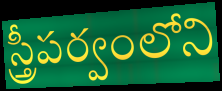
స్త్రీపర్వంలోని